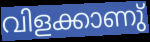
വിളക്കാണു്